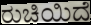
ರುಚಿಯಿದೆ